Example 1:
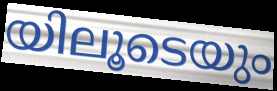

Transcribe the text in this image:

യിലൂടെയും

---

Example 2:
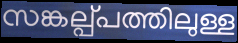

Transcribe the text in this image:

സങ്കല്പ്പത്തിലുള്ള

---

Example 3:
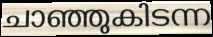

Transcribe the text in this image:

ചാഞ്ഞുകിടന്ന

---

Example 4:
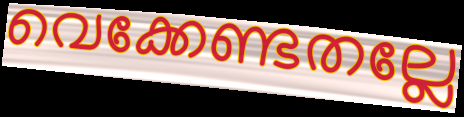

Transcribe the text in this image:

വെക്കേണ്ടതല്ലേ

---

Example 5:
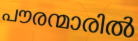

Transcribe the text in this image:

പൗരന്മാരിൽ